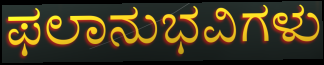
ಫಲಾನುಭವಿಗಳು